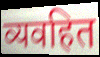
व्यवहित